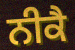
ਨੀਕੈ